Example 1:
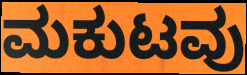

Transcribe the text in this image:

ಮಕುಟವು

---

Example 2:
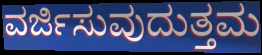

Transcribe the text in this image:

ವರ್ಜಿಸುವುದುತ್ತಮ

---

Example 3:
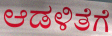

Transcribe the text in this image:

ಆಡಳಿತೆಗೆ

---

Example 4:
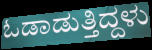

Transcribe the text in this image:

ಓಡಾಡುತ್ತಿದ್ದಳು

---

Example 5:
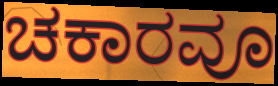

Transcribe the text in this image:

ಚಕಾರವೂ